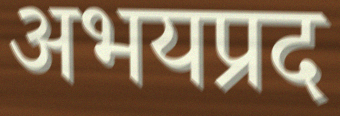
अभयप्रद